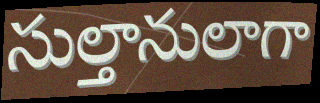
సుల్తానులాగా